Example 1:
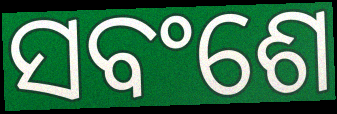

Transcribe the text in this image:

ସବଂଶେ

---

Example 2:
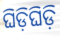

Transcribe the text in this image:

ଘିଡ଼ିଘିଡ଼ି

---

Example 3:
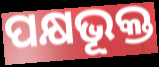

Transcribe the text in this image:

ପକ୍ଷଭୂକ୍ତ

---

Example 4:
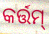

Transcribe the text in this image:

କର୍ତ୍ତମ୍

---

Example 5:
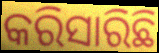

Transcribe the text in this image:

କରିସାରିଛି